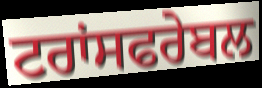
ਟਰਾਂਸਫਰੇਬਲ